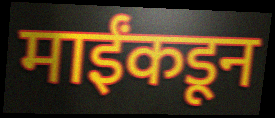
माईंकडून